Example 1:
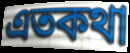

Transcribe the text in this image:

এতকথা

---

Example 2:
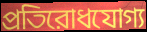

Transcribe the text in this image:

প্রতিরোধযোগ্য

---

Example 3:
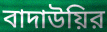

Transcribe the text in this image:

বাদাউয়ির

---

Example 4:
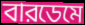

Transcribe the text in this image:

বারডেমে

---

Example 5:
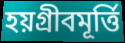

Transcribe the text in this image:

হয়গ্রীবমূর্ত্তি